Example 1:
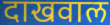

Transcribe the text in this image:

दाखवाल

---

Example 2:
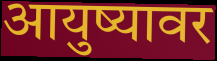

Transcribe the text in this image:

आयुष्यावर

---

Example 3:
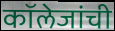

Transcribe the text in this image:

कॉलेजांची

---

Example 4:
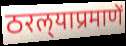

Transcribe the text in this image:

ठरल्याप्रमाणें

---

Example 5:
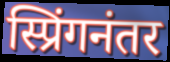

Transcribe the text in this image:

स्प्रिंगनंतर